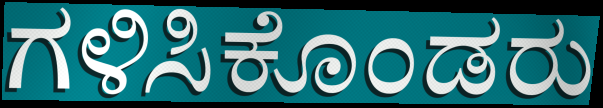
ಗಳಿಸಿಕೊಂಡರು